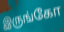
இருங்கோ